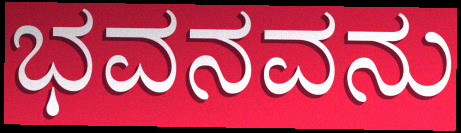
ಭವನವನು